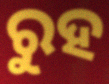
ରୁହ